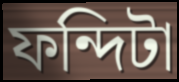
ফন্দিটা